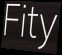
Fity